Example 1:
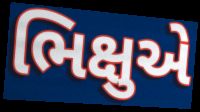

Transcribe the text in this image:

ભિક્ષુએ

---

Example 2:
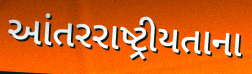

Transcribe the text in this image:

આંતરરાષ્ટ્રીયતાના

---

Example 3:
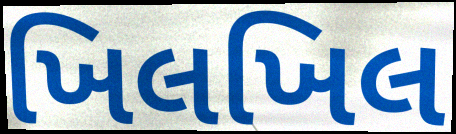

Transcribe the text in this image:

ખિલખિલ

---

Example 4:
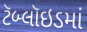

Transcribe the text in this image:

ટૅબ્લૉઇડમાં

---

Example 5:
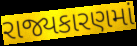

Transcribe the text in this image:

રાજ્યકારણમાં